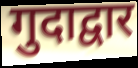
गुदाद्वार